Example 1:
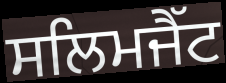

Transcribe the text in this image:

ਸਲਿਮਜੈੱਟ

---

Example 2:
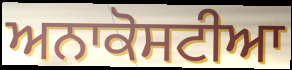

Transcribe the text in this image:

ਅਨਾਕੋਸਟੀਆ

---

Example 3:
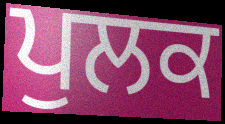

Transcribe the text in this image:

ਪੁਲਕ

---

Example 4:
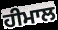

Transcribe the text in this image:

ਹੀਮਾਲ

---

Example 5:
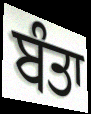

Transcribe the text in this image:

ਬੰਤਾ